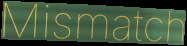
Mismatch